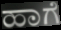
ಹಾಗೆ